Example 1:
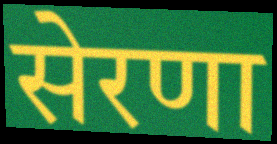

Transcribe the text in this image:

सेरणा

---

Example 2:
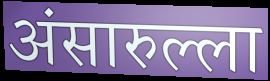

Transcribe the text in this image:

अंसारुल्ला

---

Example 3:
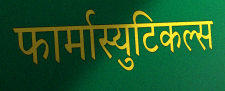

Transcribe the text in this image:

फार्मास्युटिकल्स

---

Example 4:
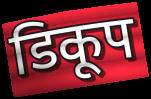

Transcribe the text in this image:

डिकूप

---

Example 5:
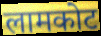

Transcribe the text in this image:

लामकोट